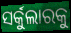
ସର୍କୁଲାରକୁ